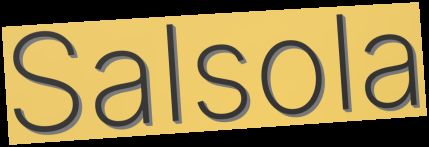
Salsola